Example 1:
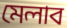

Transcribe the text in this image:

মেলাব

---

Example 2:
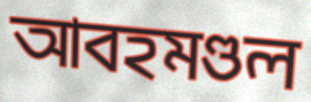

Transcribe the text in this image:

আবহমণ্ডল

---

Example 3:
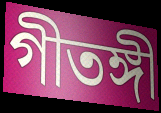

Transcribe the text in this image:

গীতঙ্গী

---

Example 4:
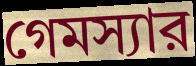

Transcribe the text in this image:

গেমস্যার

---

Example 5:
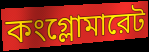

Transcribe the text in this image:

কংগ্লোমারেট